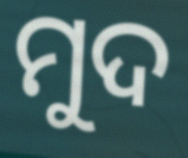
ମୁଦ